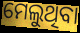
ମେଲୁଥିବା